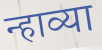
न्हाव्या